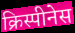
क्रिस्पीनेस